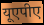
यूएपीए